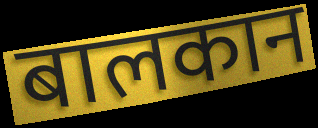
बालकान